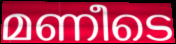
മണീടെ